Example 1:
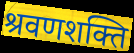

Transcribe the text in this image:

श्रवणशक्ति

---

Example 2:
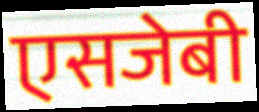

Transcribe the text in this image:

एसजेबी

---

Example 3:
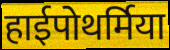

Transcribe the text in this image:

हाईपोथर्मिया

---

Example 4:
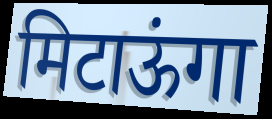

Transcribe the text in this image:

मिटाऊंगा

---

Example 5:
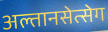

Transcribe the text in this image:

अल्तानसेत्सेग